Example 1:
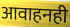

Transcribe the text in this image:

आवाहनही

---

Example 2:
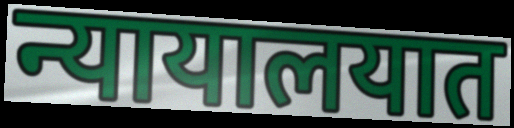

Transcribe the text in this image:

न्यायालयात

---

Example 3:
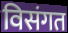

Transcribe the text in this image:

विसंगत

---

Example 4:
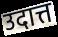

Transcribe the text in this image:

उदात्त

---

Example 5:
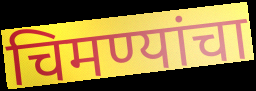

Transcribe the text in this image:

चिमण्यांचा